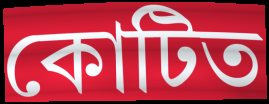
কোটিত